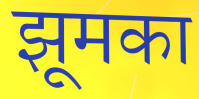
झूमका